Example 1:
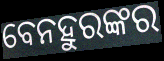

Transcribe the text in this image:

ବେନହୁରଙ୍କର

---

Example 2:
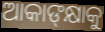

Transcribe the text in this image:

ଆକାଙ୍‍କ୍ଷାକୁ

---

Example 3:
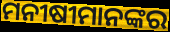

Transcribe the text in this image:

ମନୀଷୀମାନଙ୍କର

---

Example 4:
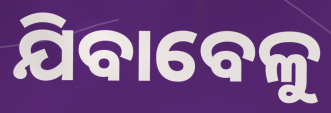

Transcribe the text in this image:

ଯିବାବେଳୁ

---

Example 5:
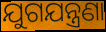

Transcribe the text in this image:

ଯୁଗଯନ୍ତ୍ରଣା